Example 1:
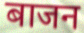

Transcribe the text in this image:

बाजन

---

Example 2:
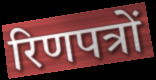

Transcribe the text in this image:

रिणपत्रों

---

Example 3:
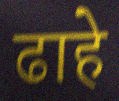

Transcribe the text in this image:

ढाहे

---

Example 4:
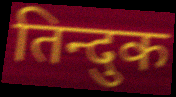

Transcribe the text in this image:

तिन्दुक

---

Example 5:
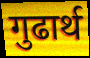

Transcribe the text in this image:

गुढार्थ